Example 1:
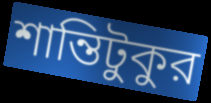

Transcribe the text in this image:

শান্তিটুকুর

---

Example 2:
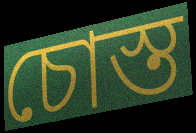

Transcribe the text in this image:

চোস্ত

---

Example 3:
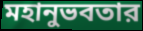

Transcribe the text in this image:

মহানুভবতার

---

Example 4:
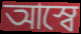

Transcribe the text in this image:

আস্বে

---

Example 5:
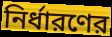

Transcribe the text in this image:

নির্ধারণের